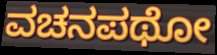
ವಚನಪಥೋ